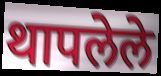
थापलेले